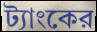
ট্যাংকের